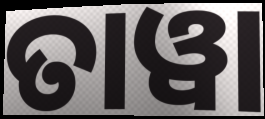
ତାୱା